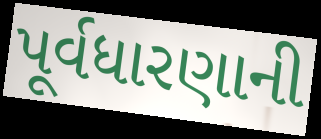
પૂર્વધારણાની